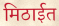
मिठाईत